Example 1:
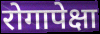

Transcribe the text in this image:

रोगापेक्षा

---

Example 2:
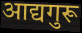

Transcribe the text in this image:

आद्यगुरू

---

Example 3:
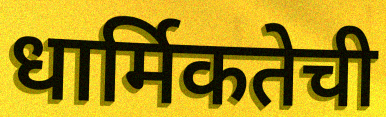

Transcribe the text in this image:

धार्मिकतेची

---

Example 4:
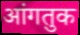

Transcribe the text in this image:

आंगतुक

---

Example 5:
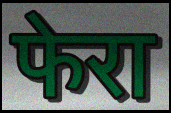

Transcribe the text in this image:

फेरा